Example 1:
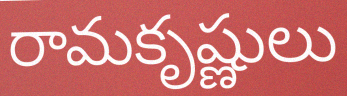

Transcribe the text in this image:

రామకృష్ణులు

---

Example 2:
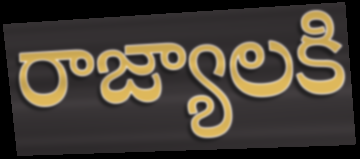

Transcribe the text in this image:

రాజ్యాలకి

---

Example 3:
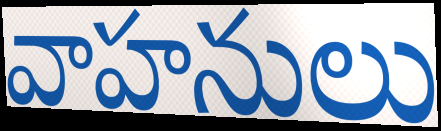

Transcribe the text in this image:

వాహనులు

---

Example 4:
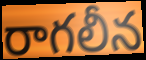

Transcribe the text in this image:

రాగలీన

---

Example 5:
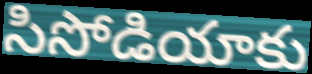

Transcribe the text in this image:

సిసోడియాకు